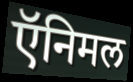
ऍनिमल